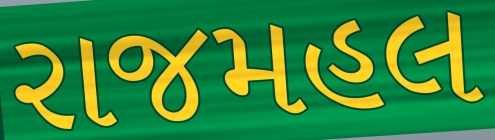
રાજમહલ